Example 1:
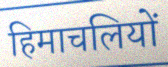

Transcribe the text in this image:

हिमाचलियों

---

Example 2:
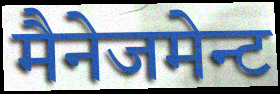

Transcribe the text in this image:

मैनेजमेन्ट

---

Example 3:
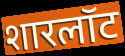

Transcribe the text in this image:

शारलॉट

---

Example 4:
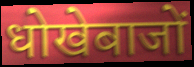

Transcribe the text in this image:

धोखेबाजों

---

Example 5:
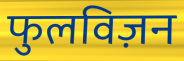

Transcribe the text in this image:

फुलविज़न